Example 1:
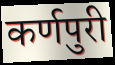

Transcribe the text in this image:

कर्णपुरी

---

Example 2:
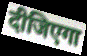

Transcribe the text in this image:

दीजिएगा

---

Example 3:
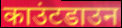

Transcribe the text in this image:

काउंटडाउन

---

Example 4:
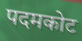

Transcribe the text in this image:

पदमकोट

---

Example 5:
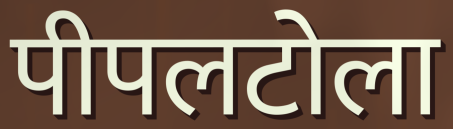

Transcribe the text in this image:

पीपलटोला